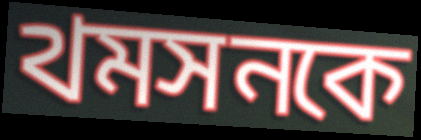
থমসনকে